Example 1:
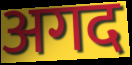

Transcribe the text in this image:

अगद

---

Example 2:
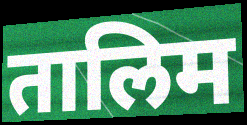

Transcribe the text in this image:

तालिम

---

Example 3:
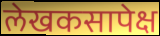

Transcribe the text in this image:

लेखकसापेक्ष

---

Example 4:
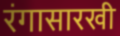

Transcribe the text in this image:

रंगासारखी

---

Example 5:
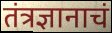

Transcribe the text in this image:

तंत्रज्ञानाचं